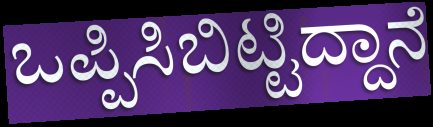
ಒಪ್ಪಿಸಿಬಿಟ್ಟಿದ್ದಾನೆ